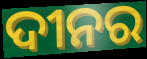
ଦୀନର